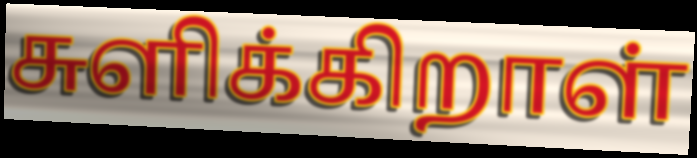
சுளிக்கிறாள்